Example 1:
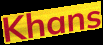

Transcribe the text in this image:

Khans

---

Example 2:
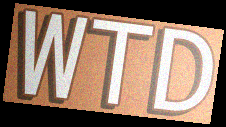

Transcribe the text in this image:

WTD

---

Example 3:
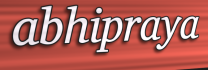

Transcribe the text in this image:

abhipraya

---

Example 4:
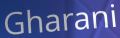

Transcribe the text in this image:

Gharani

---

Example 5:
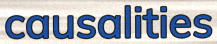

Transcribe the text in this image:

causalities